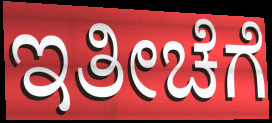
ಇತೀಚೆಗೆ